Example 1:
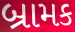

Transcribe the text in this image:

બ્રામક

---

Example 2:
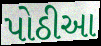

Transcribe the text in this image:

પોઠીઆ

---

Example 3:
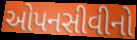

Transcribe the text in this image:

ઓપનસીવીનો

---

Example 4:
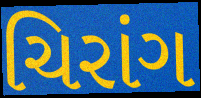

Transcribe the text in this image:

ચિરાંગ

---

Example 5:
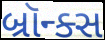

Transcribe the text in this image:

બ્રૉન્ક્સ